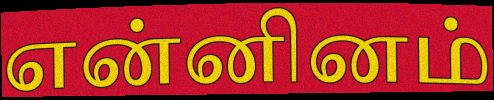
என்னினம்